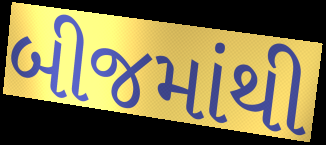
બીજમાંથી